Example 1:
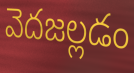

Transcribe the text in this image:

వెదజల్లడం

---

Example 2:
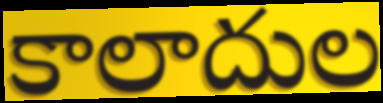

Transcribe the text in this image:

కాలాదుల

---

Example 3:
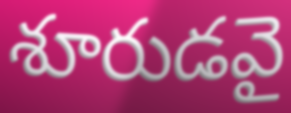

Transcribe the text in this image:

శూరుడవై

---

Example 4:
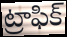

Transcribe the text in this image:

ట్రాఫిక్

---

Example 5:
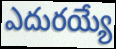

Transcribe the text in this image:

ఎదురయ్యే